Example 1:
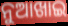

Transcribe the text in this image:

ନୁଆଖାଇ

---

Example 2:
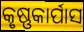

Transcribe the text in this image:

କୃଷ୍ଣକାର୍ପାସ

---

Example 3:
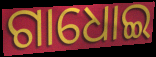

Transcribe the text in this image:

ଗାଧୋଇ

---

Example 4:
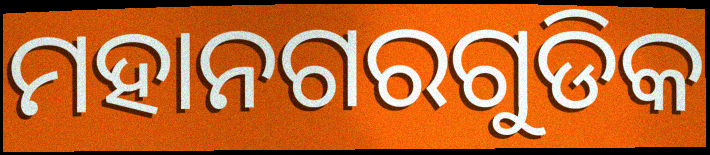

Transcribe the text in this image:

ମହାନଗରଗୁଡିକ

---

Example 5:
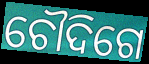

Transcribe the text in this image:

ଚୌଦିଗେ